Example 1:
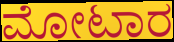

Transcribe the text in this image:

ಮೋಟಾರ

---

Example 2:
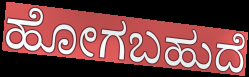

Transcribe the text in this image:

ಹೋಗಬಹುದೆ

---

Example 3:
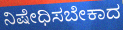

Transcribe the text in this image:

ನಿಷೇಧಿಸಬೇಕಾದ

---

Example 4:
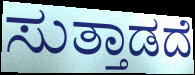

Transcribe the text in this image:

ಸುತ್ತಾಡದೆ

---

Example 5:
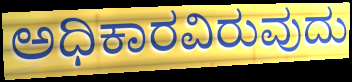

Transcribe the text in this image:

ಅಧಿಕಾರವಿರುವುದು